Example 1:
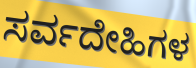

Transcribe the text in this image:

ಸರ್ವದೇಹಿಗಳ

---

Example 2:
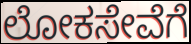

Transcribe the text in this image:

ಲೋಕಸೇವೆಗೆ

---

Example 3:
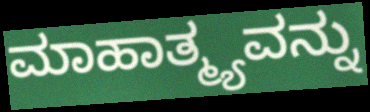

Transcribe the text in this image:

ಮಾಹಾತ್ಮ್ಯವನ್ನು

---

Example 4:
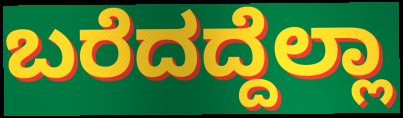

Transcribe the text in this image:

ಬರೆದದ್ದೆಲ್ಲಾ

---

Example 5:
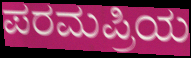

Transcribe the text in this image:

ಪರಮಪ್ರಿಯ